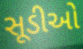
સૂડીઓ